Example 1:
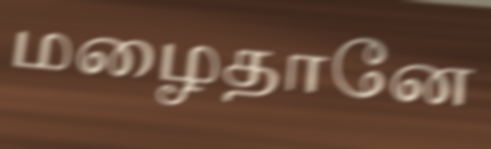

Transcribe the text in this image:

மழைதானே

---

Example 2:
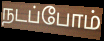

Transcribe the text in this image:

நடப்போம்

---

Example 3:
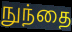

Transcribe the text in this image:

நுந்தை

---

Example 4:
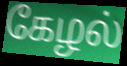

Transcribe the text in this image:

கேழல்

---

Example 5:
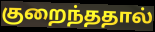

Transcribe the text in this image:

குறைந்ததால்